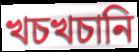
খচখচানি